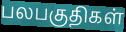
பலபகுதிகள்